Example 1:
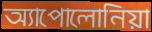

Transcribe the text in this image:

অ্যাপোলোনিয়া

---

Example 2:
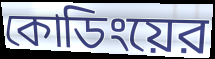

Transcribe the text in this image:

কোডিংয়ের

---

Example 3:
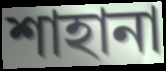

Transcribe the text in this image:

শাহানা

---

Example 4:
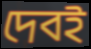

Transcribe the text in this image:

দেবই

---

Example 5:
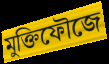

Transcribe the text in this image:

মুক্তিফৌজে